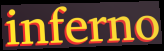
inferno